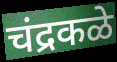
चंद्रकळे